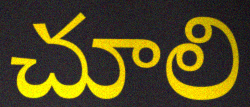
చూలి